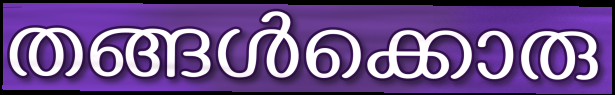
തങ്ങൾക്കൊരു